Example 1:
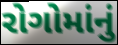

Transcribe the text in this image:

રોગોમાંનું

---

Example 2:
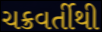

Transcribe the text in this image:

ચક્રવર્તીથી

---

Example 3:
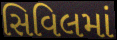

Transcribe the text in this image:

સિવિલમાં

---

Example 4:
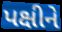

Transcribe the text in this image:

પક્ષીને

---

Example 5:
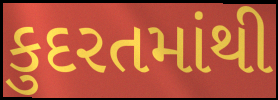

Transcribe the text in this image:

કુદરતમાંથી